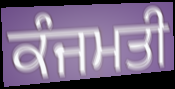
ਕੰਜਮਤੀ